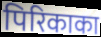
पिरिकाका